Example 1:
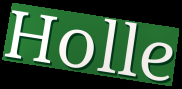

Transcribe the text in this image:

Holle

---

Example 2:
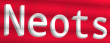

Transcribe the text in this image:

Neots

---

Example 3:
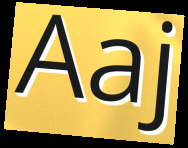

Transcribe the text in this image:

Aaj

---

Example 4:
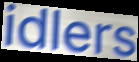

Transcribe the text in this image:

idlers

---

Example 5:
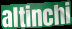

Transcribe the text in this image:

altinchi